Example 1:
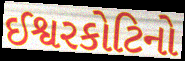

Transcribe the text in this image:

ઈશ્વરકોટિનો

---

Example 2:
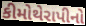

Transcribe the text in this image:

કીમોથેરાપીનો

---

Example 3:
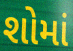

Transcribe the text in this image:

શોમાં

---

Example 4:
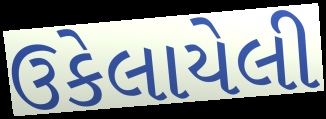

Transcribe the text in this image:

ઉકેલાયેલી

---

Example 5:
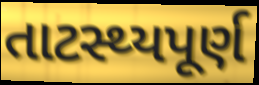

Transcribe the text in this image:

તાટસ્થ્યપૂર્ણ